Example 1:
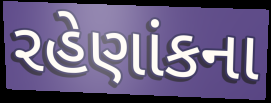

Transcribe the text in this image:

રહેણાંકના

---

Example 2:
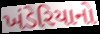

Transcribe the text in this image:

ખંડેરિયાનો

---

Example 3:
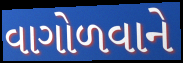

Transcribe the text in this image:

વાગોળવાને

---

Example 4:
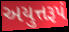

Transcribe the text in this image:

અયુત્તરૂપં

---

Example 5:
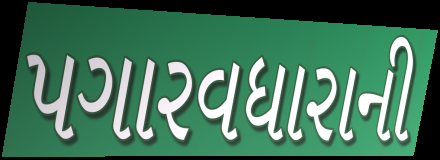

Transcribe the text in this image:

પગારવધારાની